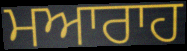
ਮਆਰਾਹ